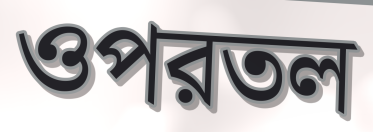
ওপরতল